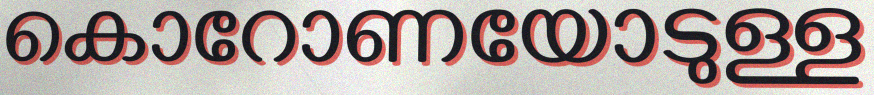
കൊറോണയോടുള്ള